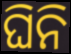
ଘିନି